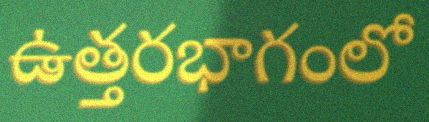
ఉత్తరభాగంలో